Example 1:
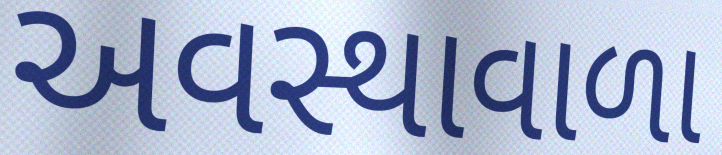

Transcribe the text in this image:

અવસ્થાવાળા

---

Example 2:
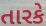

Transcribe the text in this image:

તારકે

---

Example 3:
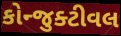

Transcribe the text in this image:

કોન્જુક્ટીવલ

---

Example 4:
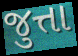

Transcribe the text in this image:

જુત્તા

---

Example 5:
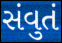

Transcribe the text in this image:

સંવુતં